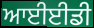
ਆਈਈਡੀ